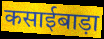
कसाईबाड़ा